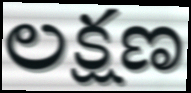
లక్షణ